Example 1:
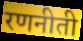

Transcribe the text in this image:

रणनीती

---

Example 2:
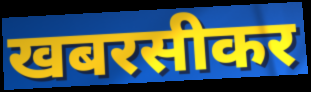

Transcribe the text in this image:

खबरसीकर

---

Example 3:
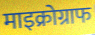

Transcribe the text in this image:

माइक्रोग्राफ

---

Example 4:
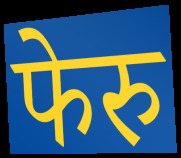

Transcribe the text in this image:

फेरु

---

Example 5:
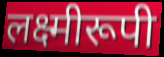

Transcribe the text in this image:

लक्ष्मीरूपी